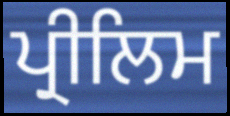
ਪ੍ਰੀਲਿਮ